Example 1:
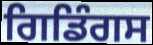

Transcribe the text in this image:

ਗਿਡਿੰਗਸ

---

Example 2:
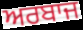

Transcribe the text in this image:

ਅਰਬਾਜ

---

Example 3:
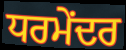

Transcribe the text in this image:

ਧਰਮੇਂਦਰ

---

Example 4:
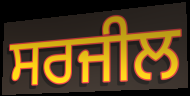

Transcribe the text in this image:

ਸਰਜੀਲ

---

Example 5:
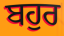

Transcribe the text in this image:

ਬਹੁਰ